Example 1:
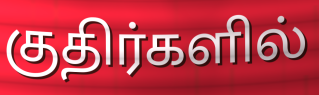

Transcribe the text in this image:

குதிர்களில்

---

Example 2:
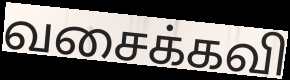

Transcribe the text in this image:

வசைக்கவி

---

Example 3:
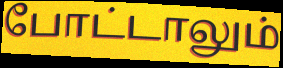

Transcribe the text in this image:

போட்டாலும்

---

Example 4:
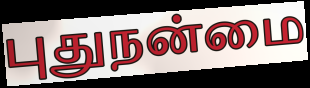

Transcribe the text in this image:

புதுநன்மை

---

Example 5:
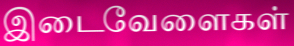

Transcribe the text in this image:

இடைவேளைகள்